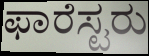
ಫಾರೆಸ್ಟರು